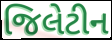
જિલેટીન